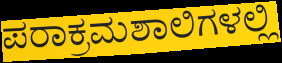
ಪರಾಕ್ರಮಶಾಲಿಗಳಲ್ಲಿ